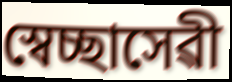
স্বেচ্ছাসেৱী